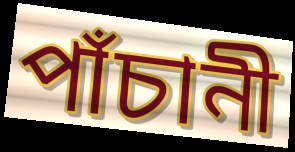
পাঁচানী